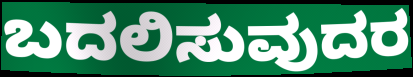
ಬದಲಿಸುವುದರ